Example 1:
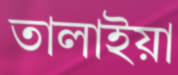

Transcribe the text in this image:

তালাইয়া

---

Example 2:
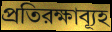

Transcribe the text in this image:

প্রতিরক্ষাব্যূহ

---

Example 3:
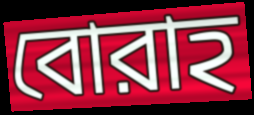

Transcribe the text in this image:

বোরাহ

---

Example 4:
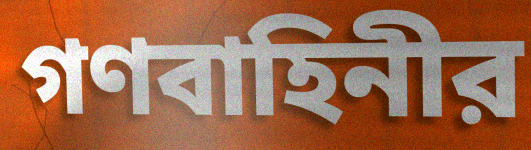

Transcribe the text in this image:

গণবাহিনীর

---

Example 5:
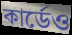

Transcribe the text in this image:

কার্ডেও